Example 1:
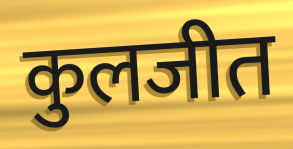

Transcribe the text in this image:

कुलजीत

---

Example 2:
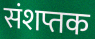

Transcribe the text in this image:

संशप्तक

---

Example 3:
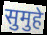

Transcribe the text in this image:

सुमुहे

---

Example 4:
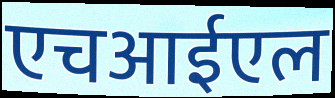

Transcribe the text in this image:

एचआईएल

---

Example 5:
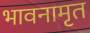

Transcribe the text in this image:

भावनामृत